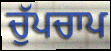
ਚੁੱਪਚਾਪ